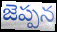
జెప్పన